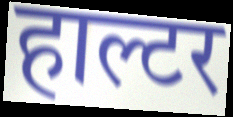
हाल्टर